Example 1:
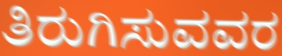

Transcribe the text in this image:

ತಿರುಗಿಸುವವರ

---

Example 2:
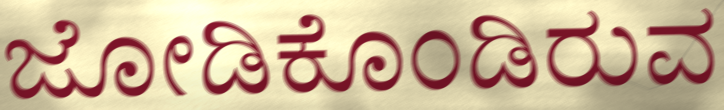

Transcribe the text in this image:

ಜೋಡಿಕೊಂಡಿರುವ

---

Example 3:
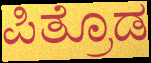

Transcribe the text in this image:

ಪಿತ್ರೊಡ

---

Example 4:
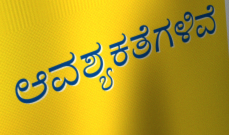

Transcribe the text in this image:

ಆವಶ್ಯಕತೆಗಳಿವೆ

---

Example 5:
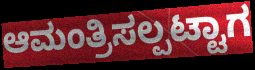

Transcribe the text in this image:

ಆಮಂತ್ರಿಸಲ್ಪಟ್ಟಾಗ